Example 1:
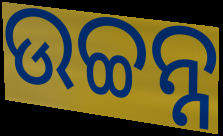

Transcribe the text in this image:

ଉଚ୍ଚନ୍ନ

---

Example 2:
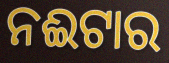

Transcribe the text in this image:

ନଈଟାର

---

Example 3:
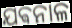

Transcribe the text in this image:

ଯଵନାଳ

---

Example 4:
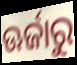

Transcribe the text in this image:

ଊର୍ଜାରୁ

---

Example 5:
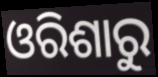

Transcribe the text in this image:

ଓରିଶାରୁ